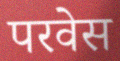
परवेस